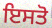
ਇਸਤੋ